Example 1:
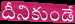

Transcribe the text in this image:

దీనికుండే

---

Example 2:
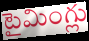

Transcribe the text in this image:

టైమింగ్లు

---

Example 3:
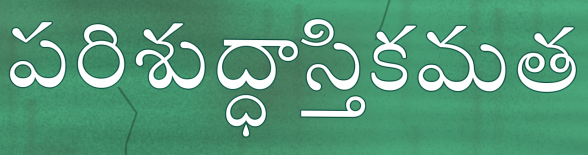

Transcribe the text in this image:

పరిశుద్ధాస్తికమత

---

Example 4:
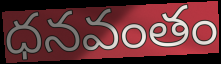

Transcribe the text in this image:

ధనవంతం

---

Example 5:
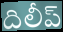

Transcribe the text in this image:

దిలీప్